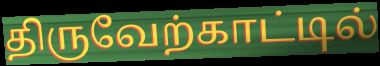
திருவேற்காட்டில்